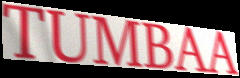
TUMBAA